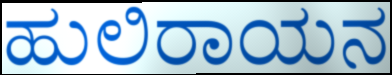
ಹುಲಿರಾಯನ